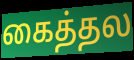
கைத்தல